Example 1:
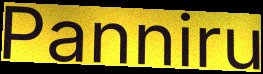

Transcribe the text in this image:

Panniru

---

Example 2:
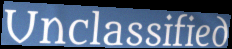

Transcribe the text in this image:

Unclassified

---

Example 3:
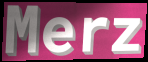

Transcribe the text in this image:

Merz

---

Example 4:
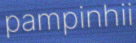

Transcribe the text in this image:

pampinhii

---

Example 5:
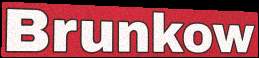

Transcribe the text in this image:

Brunkow